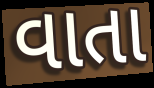
વાતા